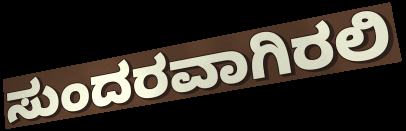
ಸುಂದರವಾಗಿರಲಿ